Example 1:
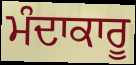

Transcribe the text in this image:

ਮੰਦਾਕਾਰੂ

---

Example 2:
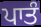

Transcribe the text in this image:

ਪਾਤੰ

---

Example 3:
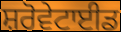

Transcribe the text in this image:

ਸ਼ਰੋਵੇਟਾਈਡ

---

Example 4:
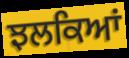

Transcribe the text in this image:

ਝਲਕਿਆਂ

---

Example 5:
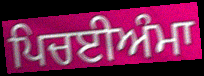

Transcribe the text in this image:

ਪਿਚਈਅੰਮਾ